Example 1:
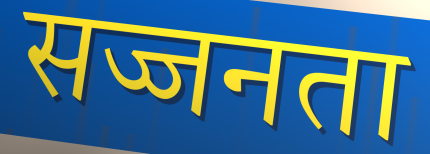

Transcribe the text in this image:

सज्जनता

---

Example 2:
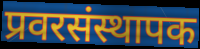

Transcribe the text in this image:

प्रवरसंस्थापक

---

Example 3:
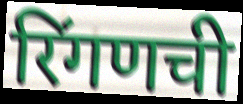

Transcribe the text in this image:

रिंगणची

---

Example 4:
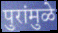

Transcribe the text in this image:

पुरांमुळे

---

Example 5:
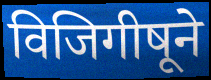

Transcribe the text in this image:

विजिगीषूने